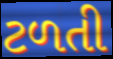
ટળતી